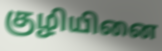
குழியினை